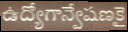
ఉద్యోగాన్వేషణకై